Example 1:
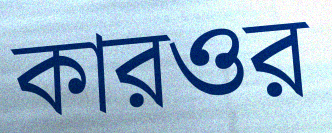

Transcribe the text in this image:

কারওর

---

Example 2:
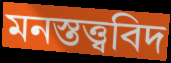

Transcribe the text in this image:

মনস্তত্ত্ববিদ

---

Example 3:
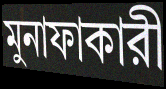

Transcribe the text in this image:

মুনাফাকারী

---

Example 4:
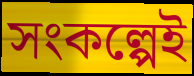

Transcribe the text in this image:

সংকল্পেই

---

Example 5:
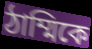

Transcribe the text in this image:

ঠাম্মিকে